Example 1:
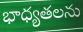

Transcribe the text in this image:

భాధ్యతలను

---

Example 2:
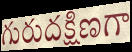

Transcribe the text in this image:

గురుదక్షిణగా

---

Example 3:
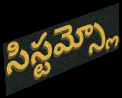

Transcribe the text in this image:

సిస్టమ్స్లో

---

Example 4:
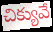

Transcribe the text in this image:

చిక్యువే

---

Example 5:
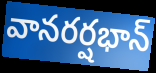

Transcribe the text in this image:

వానరర్షభాన్